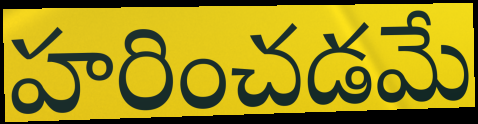
హరించడమే